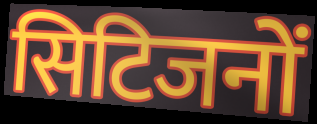
सिटिजनों